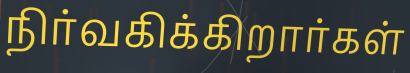
நிர்வகிக்கிறார்கள்